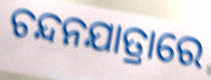
ଚନ୍ଦନଯାତ୍ରାରେ